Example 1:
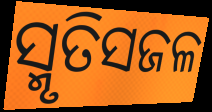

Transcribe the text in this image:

ସ୍ମୃତିସଜଳ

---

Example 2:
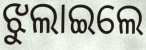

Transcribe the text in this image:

ଝୁଲାଇଲେ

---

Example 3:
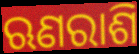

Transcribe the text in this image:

ଋଣରାଶି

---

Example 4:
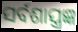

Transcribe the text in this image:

ସର୍ବଶାସ୍ତ୍ରଜ୍ଞ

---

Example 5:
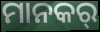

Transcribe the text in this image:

ମାନକର୍